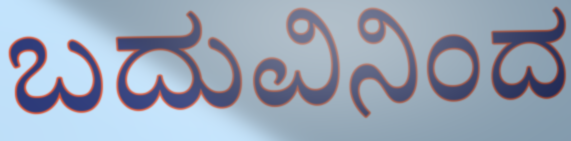
ಬದುವಿನಿಂದ